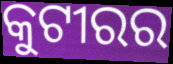
କୁଟୀରର